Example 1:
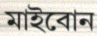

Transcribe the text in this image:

মাইবোন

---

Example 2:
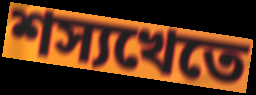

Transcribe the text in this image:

শস্যখেতে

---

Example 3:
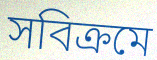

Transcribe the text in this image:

সবিক্রমে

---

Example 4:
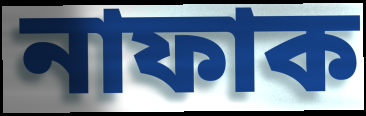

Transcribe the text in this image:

নাফাক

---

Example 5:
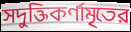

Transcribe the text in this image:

সদুক্তিকর্ণামৃতের